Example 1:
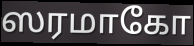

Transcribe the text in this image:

ஸரமாகோ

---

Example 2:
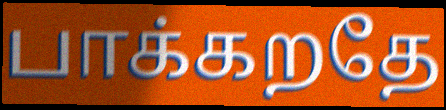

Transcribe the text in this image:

பாக்கறதே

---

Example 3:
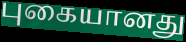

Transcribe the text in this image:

புகையானது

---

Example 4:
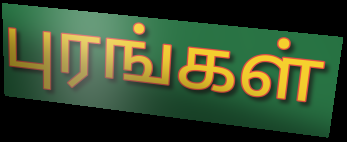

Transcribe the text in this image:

புரங்கள்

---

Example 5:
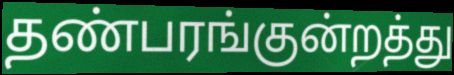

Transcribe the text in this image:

தண்பரங்குன்றத்து